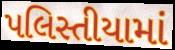
પલિસ્તીયામાં